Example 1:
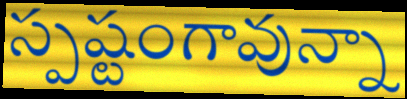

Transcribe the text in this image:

స్పష్టంగావున్నా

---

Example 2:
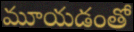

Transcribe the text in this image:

మూయడంతో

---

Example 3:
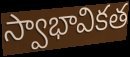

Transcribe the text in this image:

స్వాభావికత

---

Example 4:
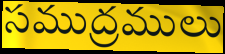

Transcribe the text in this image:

సముద్రములు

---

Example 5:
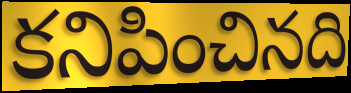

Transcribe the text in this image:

కనిపించినది